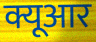
क्यूआर